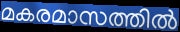
മകരമാസത്തിൽ